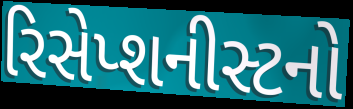
રિસેપ્શનીસ્ટનો